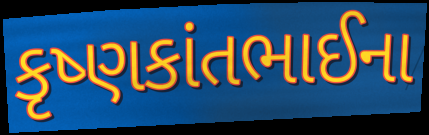
કૃષ્ણકાંતભાઈના